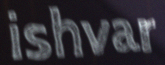
ishvar